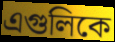
এগুলিকে